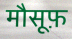
मौसूफ़